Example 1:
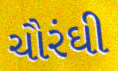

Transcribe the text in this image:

ચૌરંઘી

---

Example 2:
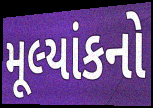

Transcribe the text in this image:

મૂલ્યાંકનો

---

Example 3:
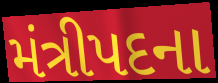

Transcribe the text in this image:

મંત્રીપદના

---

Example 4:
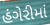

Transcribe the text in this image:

હંગેરીમાં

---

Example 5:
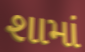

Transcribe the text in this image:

શામાં